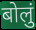
बोलुं